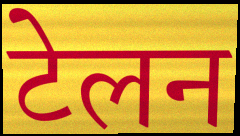
टेलन